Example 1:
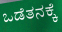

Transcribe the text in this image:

ಒಡೆತನಕ್ಕೆ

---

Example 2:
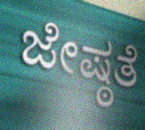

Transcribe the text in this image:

ಜೇಷ್ಠತೆ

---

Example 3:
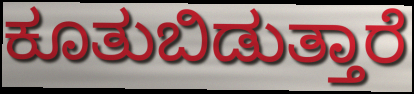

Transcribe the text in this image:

ಕೂತುಬಿಡುತ್ತಾರೆ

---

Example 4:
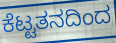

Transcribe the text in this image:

ಕೆಟ್ಟತನದಿಂದ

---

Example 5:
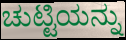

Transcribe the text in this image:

ಚುಟ್ಟಿಯನ್ನು